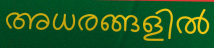
അധരങ്ങളിൽ